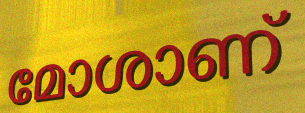
മോശാണ്